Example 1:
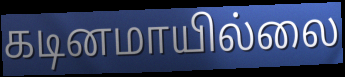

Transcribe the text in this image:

கடினமாயில்லை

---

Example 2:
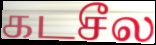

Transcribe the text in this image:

கடசீல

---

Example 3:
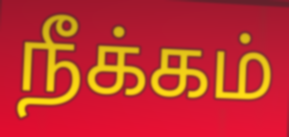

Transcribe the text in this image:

நீக்கம்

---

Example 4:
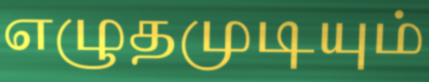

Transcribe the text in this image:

எழுதமுடியும்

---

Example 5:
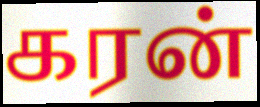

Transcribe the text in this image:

கரன்